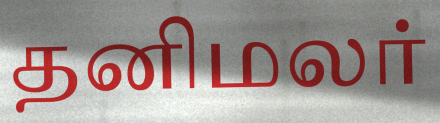
தனிமலர்